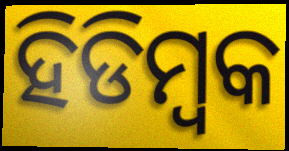
ହିଡିମ୍ବକ